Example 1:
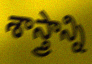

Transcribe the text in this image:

శాస్త్రాన్ని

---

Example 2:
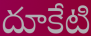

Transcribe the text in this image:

దూకేటి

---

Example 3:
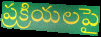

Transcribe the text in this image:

ప్రక్రియలపై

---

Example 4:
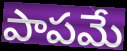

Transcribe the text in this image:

పాపమే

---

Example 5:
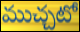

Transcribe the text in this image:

ముచ్చటో